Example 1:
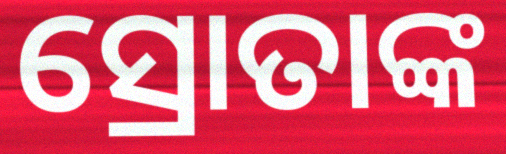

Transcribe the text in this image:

ସ୍ରୋତାଙ୍କ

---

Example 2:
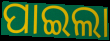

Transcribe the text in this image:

ପାଇଲା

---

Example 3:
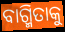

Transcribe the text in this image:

ବାଗ୍ମିତାକୁ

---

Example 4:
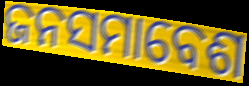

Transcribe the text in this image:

ଜନସମାବେଶ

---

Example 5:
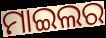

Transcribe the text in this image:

ମାଇଲର